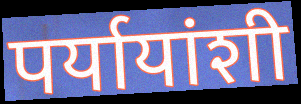
पर्यायांशी